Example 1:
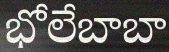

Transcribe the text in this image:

భోలేబాబా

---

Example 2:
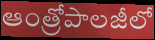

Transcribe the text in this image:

ఆంత్రోపాలజీలో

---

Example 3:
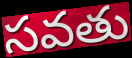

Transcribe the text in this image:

సవతు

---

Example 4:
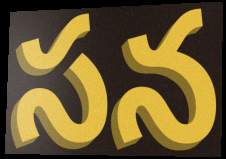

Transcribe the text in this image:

సన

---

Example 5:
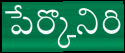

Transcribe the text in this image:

పేర్కొనిరి